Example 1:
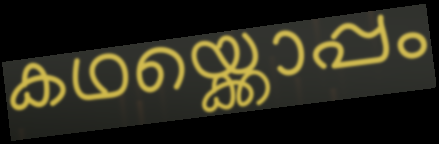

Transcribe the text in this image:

കഥയ്ക്കൊപ്പം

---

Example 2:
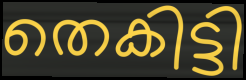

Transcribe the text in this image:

തെകിട്ടി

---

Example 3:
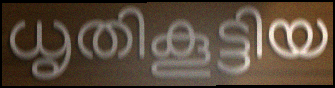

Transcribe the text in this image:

ധൃതികൂട്ടിയ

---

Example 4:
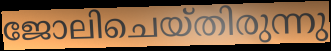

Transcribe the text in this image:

ജോലിചെയ്തിരുന്നു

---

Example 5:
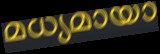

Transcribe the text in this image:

മധ്യമായാ